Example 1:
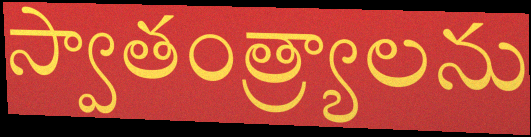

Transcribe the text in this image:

స్వాతంత్ర్యాలను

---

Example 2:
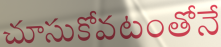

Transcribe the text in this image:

చూసుకోవటంతోనే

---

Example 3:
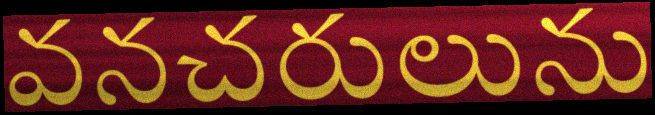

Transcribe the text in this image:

వనచరులును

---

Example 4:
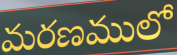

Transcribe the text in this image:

మరణములో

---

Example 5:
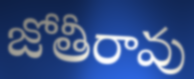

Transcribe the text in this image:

జోతీరావు